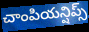
చాంపియన్షిప్స్